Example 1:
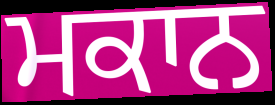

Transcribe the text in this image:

ਮਕਾਨ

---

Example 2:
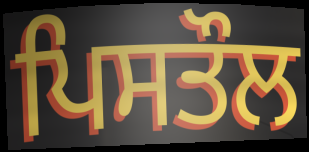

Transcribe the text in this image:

ਪਿਸਤੌਲ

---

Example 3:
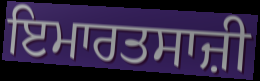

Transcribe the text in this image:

ਇਮਾਰਤਸਾਜ਼ੀ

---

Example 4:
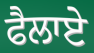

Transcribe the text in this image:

ਫੈਲਾਏ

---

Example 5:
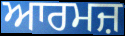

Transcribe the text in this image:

ਆਰਮਜ਼